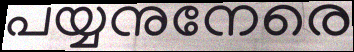
പയ്യനുനേരെ